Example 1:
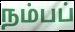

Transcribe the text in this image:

நம்பப்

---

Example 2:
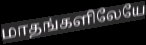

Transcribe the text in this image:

மாதங்களிலேயே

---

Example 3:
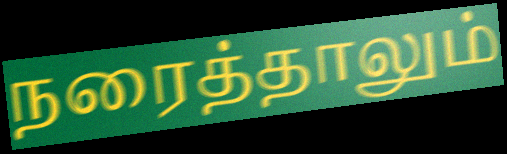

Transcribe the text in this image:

நரைத்தாலும்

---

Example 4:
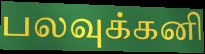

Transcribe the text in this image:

பலவுக்கனி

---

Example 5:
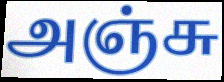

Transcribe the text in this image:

அஞ்சு